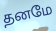
தனமே